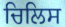
ਚਿਲਿਸ